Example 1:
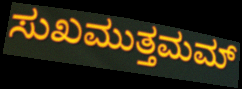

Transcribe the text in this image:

ಸುಖಮುತ್ತಮಮ್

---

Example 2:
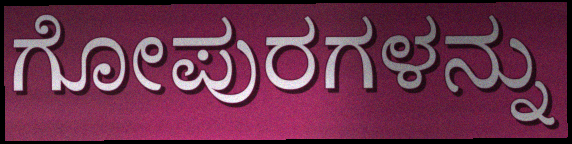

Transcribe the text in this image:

ಗೋಪುರಗಳನ್ನು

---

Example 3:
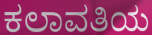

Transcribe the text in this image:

ಕಲಾವತಿಯ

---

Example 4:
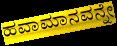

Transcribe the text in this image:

ಹವಾಮಾನವನ್ನೇ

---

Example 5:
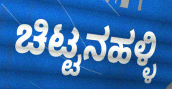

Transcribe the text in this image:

ಚಿಟ್ಟನಹಳ್ಳಿ